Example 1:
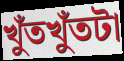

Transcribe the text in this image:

খুঁতখুঁতটা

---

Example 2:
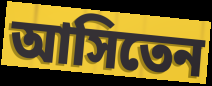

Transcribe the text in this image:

আসিতেন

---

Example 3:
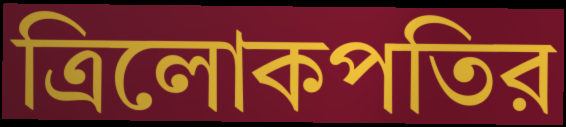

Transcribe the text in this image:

ত্রিলোকপতির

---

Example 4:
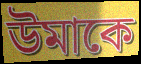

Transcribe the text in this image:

উমাকে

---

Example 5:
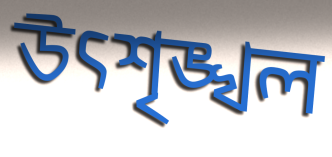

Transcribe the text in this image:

উৎশৃঙ্খল